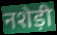
नशेड़ी